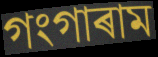
গংগাৰাম